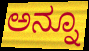
ಅನ್ನೂ